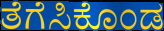
ತೆಗೆಸಿಕೊಂಡ